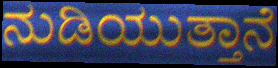
ನುಡಿಯುತ್ತಾನೆ